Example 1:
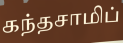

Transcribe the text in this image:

கந்தசாமிப்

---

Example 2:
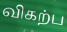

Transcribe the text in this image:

விகற்ப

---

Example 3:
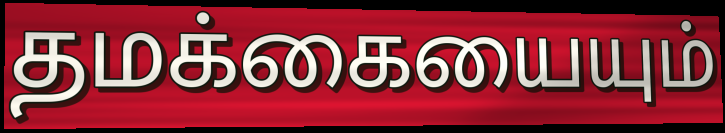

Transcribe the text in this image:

தமக்கையையும்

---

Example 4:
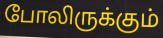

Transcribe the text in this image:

போலிருக்கும்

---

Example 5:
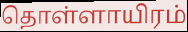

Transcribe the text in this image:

தொள்ளாயிரம்